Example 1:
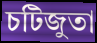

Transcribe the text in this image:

চটিজুতা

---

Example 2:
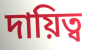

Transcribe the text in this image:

দায়িত্ব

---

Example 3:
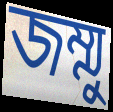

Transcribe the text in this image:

জম্মু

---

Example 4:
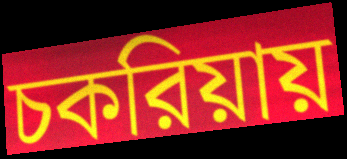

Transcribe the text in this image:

চকরিয়ায়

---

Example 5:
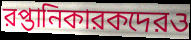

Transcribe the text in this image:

রপ্তানিকারকদেরও